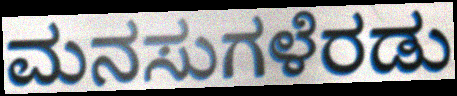
ಮನಸುಗಳೆರಡು